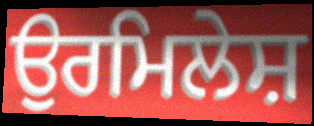
ਉਰਮਿਲੇਸ਼